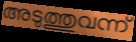
അടുത്തുവന്ന്